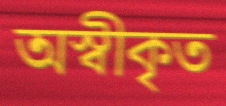
অস্বীকৃত